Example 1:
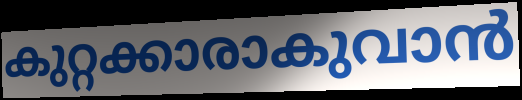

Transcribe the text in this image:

കുറ്റക്കാരാകുവാൻ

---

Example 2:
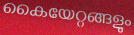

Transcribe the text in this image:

കൈയേറ്റങ്ങളും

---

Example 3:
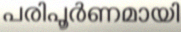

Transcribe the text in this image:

പരിപൂർണമായി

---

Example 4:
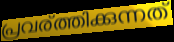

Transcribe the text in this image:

പ്രവര്ത്തിക്കുന്നത്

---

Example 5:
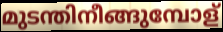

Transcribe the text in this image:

മുടന്തിനീങ്ങുമ്പോള്